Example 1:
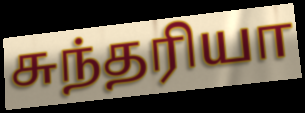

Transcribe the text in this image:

சுந்தரியா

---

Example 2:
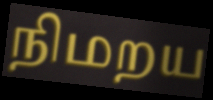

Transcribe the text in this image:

நிமறய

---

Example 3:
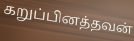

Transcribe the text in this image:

கறுப்பினத்தவன்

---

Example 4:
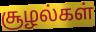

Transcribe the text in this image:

சூழல்கள்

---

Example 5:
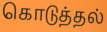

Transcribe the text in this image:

கொடுத்தல்